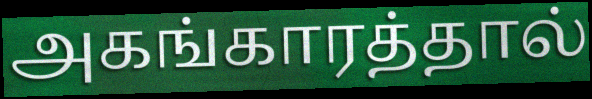
அகங்காரத்தால்